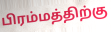
பிரம்மத்திற்கு